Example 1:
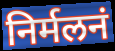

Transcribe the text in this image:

निर्मलनं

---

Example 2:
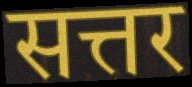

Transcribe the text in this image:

सत्तर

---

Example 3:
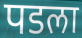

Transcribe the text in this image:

पडला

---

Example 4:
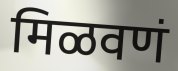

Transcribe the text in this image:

मिळवणं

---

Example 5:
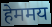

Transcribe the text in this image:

हेममय